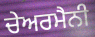
ਚੇਅਰਮੈਨੀ